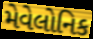
મેવેલોનિક